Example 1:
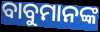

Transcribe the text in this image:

ବାବୁମାନଙ୍କ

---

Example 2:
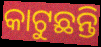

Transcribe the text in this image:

କାଟୁଛନ୍ତି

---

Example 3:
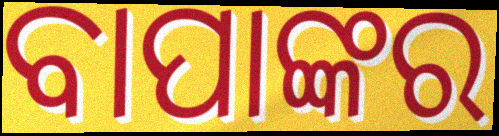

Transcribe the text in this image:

ବାପାଙ୍କର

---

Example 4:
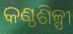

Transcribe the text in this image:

କଣ୍ଠଶିଳ୍ପୀ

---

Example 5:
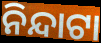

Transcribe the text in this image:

ନିନ୍ଦାଟା